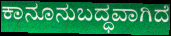
ಕಾನೂನುಬದ್ಧವಾಗಿದೆ